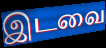
இடவை